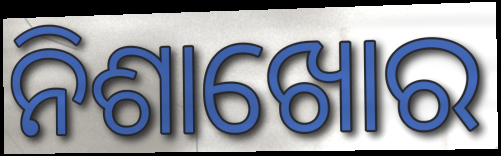
ନିଶାଖୋର